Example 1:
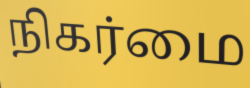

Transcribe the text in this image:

நிகர்மை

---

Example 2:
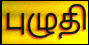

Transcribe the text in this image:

புழுதி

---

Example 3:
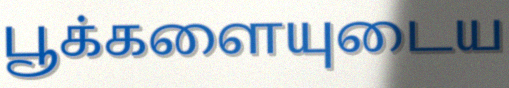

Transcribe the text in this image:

பூக்களையுடைய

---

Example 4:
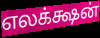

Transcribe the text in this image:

எலக்க்ஷன்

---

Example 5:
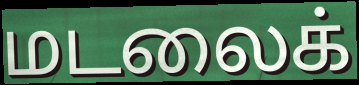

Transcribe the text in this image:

மடலைக்